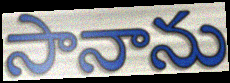
సానాను